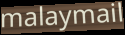
malaymail